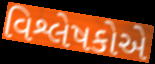
વિશ્લેષકોએ